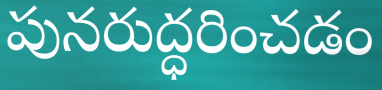
పునరుద్ధరించడం